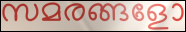
സമരങ്ങളോ